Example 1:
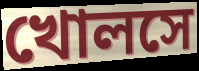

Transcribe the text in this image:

খোলসে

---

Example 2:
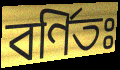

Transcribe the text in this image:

বর্ণিতঃ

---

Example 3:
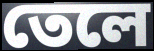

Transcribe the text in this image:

তেলে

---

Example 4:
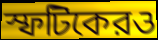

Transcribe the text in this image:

স্ফটিকেরও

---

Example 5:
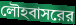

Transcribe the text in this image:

লৌহবাসরের